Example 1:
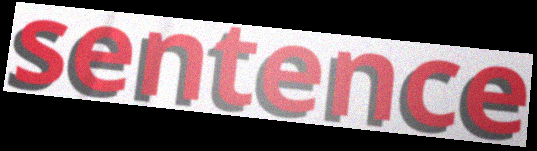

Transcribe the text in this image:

sentence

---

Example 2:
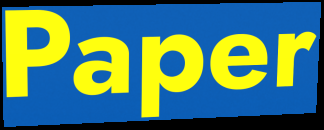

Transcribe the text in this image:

Paper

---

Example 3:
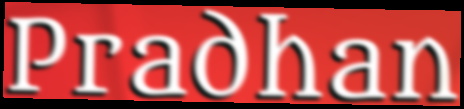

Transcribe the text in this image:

Pradhan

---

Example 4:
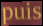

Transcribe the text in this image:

puis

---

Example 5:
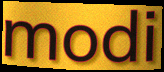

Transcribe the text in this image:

modi